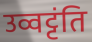
उव्वट्टंति